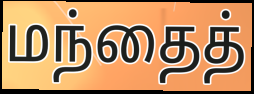
மந்தைத்